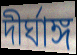
দীর্ঘাঙ্গ